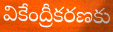
వికేంద్రీకరణకు